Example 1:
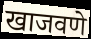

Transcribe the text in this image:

खाजवणे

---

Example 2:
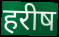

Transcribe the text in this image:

हरीष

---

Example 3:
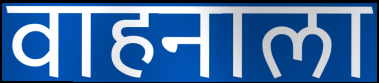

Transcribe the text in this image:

वाहनाला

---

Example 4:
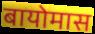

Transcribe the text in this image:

बायोमास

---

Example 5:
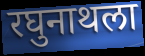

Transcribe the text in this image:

रघुनाथला